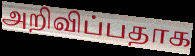
அறிவிப்பதாக